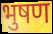
भुषण